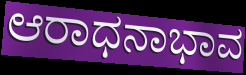
ಆರಾಧನಾಭಾವ